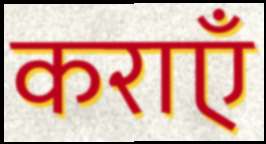
कराएँ